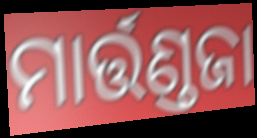
ମାର୍ତ୍ତଣ୍ଡଜା